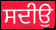
ਸਦੀਉ